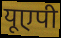
यूएपी